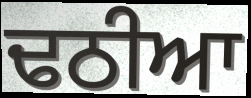
ਢਠੀਆ